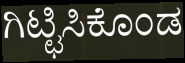
ಗಿಟ್ಟಿಸಿಕೊಂಡ